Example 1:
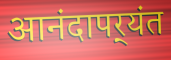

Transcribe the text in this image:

आनंदापर्यंत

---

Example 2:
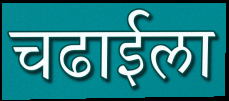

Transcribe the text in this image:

चढाईला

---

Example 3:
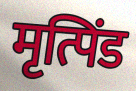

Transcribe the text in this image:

मृत्पिंड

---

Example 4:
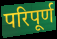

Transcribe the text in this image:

परिपूर्ण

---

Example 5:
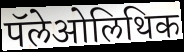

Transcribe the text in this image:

पॅलेओलिथिक